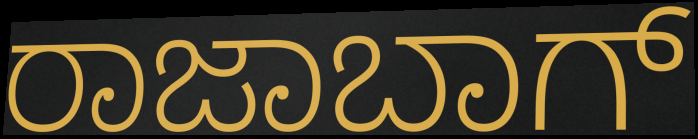
ರಾಜಾಬಾಗ್